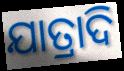
ଯାତ୍ରାଦି